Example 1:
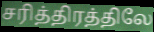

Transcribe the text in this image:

சரித்திரத்திலே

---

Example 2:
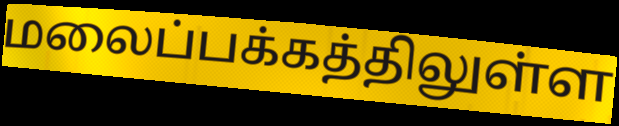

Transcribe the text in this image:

மலைப்பக்கத்திலுள்ள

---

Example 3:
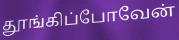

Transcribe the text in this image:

தூங்கிப்போவேன்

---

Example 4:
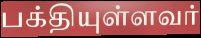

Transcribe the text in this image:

பக்தியுள்ளவர்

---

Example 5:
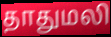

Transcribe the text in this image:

தாதுமலி